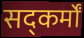
सद्कर्मों